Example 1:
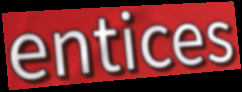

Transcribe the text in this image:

entices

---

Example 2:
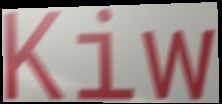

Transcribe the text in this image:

Kiw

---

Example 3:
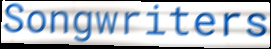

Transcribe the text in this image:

Songwriters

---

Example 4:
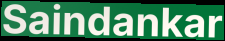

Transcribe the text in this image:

Saindankar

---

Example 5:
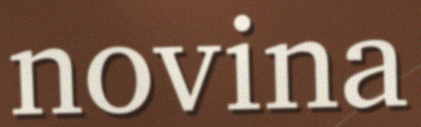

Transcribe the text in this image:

novina